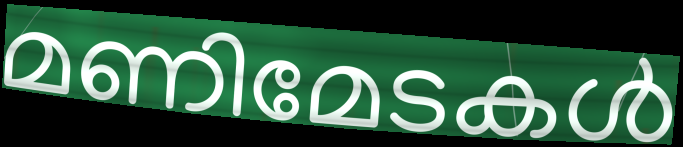
മണിമേടകൾ